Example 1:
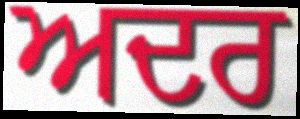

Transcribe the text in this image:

ਅਦਰ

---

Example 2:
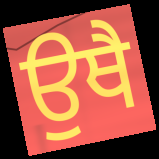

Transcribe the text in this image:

ਉਥੈ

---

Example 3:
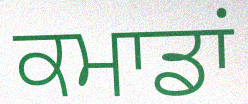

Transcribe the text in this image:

ਕਮਾਡਾਂ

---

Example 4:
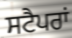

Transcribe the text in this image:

ਸਟੈਪਰਾਂ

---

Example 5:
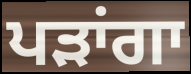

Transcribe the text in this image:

ਪੜਾਂਗਾ